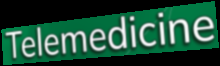
Telemedicine